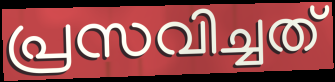
പ്രസവിച്ചത്